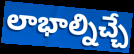
లాభాల్నిచ్చే